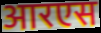
आरएस